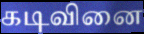
கடிவினை